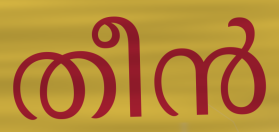
തീൻ